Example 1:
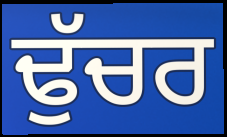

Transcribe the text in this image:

ਢੁੱਚਰ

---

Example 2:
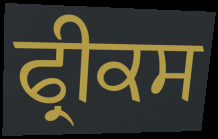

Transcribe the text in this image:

ਫ੍ਰੀਕਸ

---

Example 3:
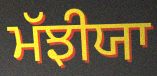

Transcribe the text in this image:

ਮੱਝੀਯਾ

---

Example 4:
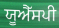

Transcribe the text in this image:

ਯੂਐੱਸਪੀ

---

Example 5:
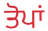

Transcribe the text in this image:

ਤੋਪਾਂ